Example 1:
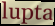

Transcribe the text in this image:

lupta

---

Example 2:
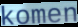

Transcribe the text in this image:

komen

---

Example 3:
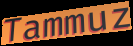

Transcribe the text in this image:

Tammuz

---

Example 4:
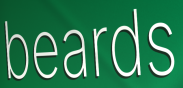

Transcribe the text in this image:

beards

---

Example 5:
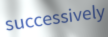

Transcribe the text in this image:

successively